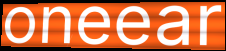
oneear